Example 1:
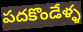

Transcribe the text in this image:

పదకొండేళ్ళ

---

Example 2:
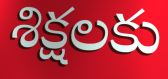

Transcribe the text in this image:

శిక్షలకు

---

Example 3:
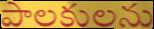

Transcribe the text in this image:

పాలకులను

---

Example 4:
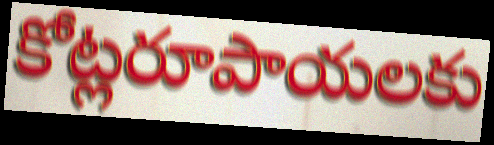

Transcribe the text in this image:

కోట్లరూపాయలకు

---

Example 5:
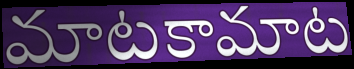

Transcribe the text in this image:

మాటకామాట